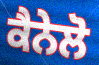
ਕੈਨੇਲੋ